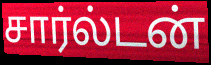
சார்ல்டன்